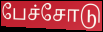
பேச்சோடு